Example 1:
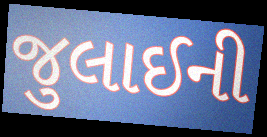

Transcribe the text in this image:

જુલાઈની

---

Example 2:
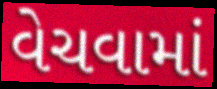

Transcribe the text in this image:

વેચવામાં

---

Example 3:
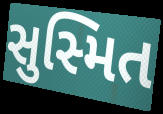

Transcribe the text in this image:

સુસ્મિત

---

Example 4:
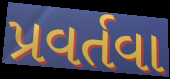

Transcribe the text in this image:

પ્રવર્તવા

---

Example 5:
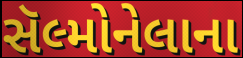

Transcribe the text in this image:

સૅલ્મોનેલાના